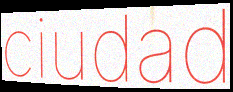
ciudad